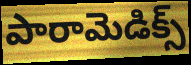
పారామెడిక్స్